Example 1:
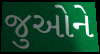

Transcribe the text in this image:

જુઓને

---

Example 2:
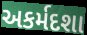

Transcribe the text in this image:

અકર્મદશા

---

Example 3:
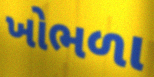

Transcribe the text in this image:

ખોભળા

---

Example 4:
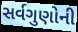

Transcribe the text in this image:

સર્વગુણોની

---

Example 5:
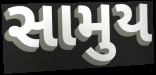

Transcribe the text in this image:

સામુય